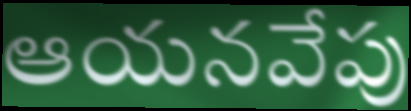
ఆయనవేపు